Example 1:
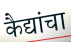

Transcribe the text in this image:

कैद्यांचा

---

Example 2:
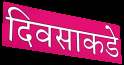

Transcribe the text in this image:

दिवसाकडे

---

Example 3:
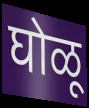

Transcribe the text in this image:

घोळू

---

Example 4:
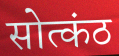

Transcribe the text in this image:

सोत्कंठ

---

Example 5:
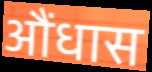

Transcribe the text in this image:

औंधास